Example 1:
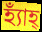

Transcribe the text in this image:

হ্যাঁহ্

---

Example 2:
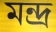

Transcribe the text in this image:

মন্দ্র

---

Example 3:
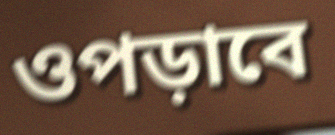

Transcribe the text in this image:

ওপড়াবে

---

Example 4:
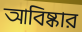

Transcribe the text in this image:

আবিষ্কার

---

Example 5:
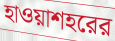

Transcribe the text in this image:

হাওয়াশহরের